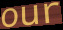
our